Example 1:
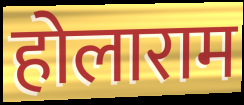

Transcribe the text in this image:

होलाराम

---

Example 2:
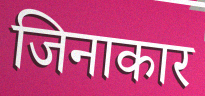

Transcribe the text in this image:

जिनाकार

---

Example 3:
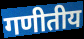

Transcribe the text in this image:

गणीतीय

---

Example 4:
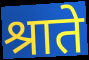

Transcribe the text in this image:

श्राते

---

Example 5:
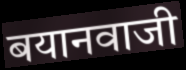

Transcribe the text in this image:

बयानवाजी